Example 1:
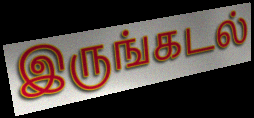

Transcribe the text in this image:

இருங்கடல்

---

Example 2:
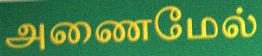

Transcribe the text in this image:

அணைமேல்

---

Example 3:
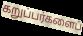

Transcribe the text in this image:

கறுப்பர்களைப்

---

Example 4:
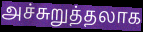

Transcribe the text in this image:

அச்சுறுத்தலாக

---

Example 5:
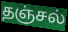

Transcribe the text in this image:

தஞ்சல்